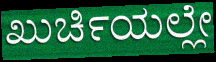
ಖುರ್ಚಿಯಲ್ಲೇ